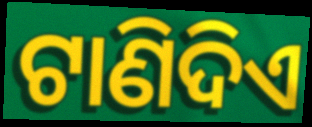
ଟାଣିଦିଏ